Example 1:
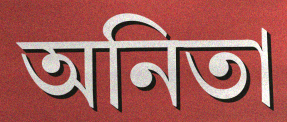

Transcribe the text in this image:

অনিতা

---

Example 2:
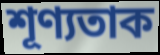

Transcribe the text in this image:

শূণ্যতাক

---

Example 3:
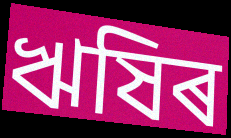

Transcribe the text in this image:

ঋষিৰ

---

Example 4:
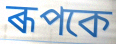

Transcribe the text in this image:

ৰূপকে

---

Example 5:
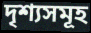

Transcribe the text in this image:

দৃশ্যসমূহ